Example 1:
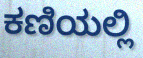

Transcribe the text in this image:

ಕಣಿಯಲ್ಲಿ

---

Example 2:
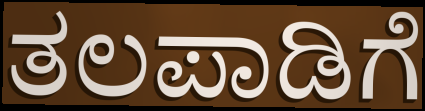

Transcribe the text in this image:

ತಲಪಾಡಿಗೆ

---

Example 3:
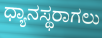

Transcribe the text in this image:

ಧ್ಯಾನಸ್ಥರಾಗಲು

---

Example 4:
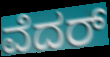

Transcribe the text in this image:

ವೆದರ್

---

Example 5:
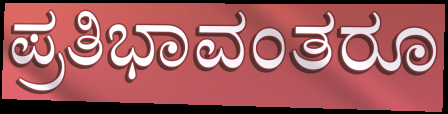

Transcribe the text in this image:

ಪ್ರತಿಭಾವಂತರೂ